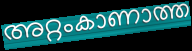
അറ്റംകാണാത്ത